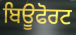
ਬਿਊਫੋਰਟ